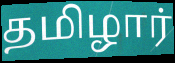
தமிழார்